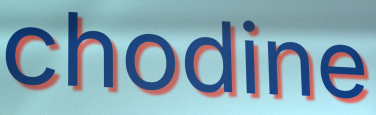
chodine